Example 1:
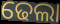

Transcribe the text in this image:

ଢେଲା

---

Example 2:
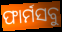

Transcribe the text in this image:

ଫାର୍ମସବୁ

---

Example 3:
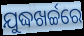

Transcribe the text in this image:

ଯୁଦ୍ଧଖର୍ଚ୍ଚରେ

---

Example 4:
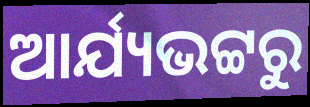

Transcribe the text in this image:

ଆର୍ଯ୍ୟଭଟ୍ଟରୁ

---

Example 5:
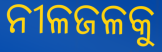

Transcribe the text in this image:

ନୀଳଜଳକୁ